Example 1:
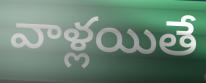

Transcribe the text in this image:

వాళ్లయితే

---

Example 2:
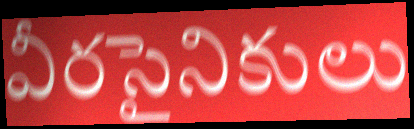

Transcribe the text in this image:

వీరసైనికులు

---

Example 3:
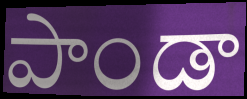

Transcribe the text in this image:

పాండా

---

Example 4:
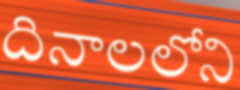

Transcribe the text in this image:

దినాలలోని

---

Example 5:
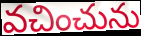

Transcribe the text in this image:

వచించును